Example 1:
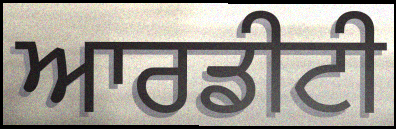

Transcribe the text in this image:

ਆਰਡੀਟੀ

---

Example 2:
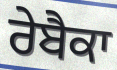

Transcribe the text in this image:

ਰੇਬੈਕਾ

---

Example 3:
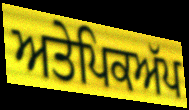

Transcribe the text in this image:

ਅਤੇਪਿਕਅੱਪ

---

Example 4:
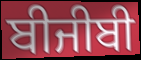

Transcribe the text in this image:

ਬੀਜੀਬੀ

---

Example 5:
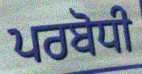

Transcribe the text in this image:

ਪਰਬੋਧੀ